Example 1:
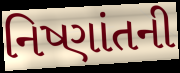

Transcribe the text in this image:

નિષ્ણાંતની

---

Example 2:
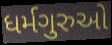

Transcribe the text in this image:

ધર્મગુરુઓ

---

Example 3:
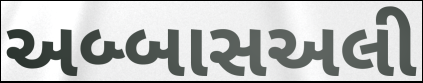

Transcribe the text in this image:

અબ્બાસઅલી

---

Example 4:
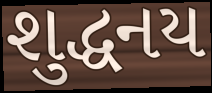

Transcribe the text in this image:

શુદ્ધનય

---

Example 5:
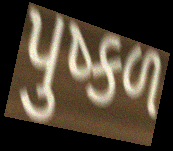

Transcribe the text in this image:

પુષ્કળ